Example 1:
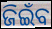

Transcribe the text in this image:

ଜିଇଁବ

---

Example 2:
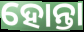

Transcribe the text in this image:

ହୋନ୍ତା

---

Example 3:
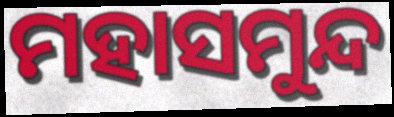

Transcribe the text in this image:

ମହାସମୁନ୍ଦ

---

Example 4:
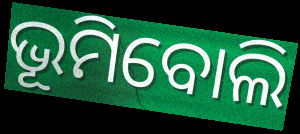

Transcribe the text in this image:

ଭୂମିବୋଲି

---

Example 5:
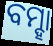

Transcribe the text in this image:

ବମ୍ହା